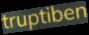
truptiben